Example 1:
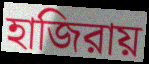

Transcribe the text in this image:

হাজিরায়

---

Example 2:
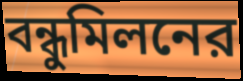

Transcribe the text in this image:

বন্ধুমিলনের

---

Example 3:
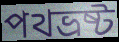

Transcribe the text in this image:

পথভ্রষ্ট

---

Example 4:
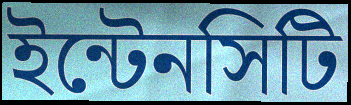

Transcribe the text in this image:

ইন্টেনসিটি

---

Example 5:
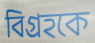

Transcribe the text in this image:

বিগ্রহকে